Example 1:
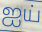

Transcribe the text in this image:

ஐய்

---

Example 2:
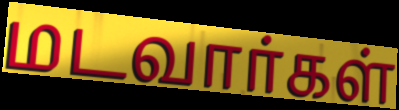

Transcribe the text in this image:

மடவார்கள்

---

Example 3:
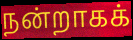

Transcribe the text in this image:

நன்றாகக்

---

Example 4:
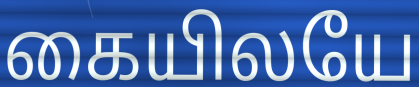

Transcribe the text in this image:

கையிலயே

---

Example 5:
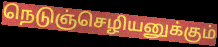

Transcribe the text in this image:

நெடுஞ்செழியனுக்கும்